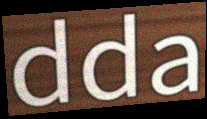
dda